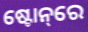
ଷ୍ଟୋନ୍‌ରେ